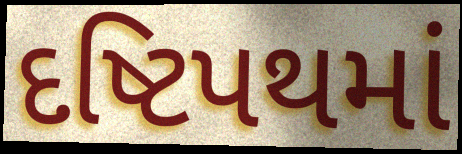
દષ્ટિપથમાં